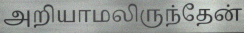
அறியாமலிருந்தேன்